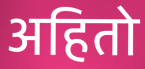
अहितो